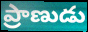
ప్రాణుడు